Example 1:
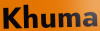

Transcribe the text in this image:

Khuma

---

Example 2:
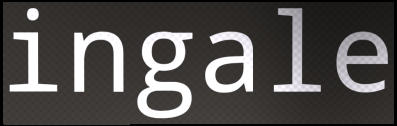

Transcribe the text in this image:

ingale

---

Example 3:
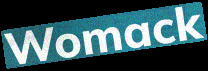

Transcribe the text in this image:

Womack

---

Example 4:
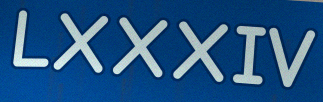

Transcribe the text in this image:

LXXXIV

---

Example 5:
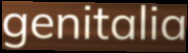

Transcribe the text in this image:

genitalia